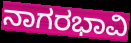
ನಾಗರಭಾವಿ